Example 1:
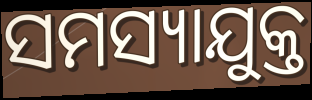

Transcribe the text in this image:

ସମସ୍ୟାଯୁକ୍ତ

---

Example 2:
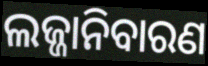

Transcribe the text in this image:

ଲଜ୍ଜାନିବାରଣ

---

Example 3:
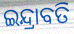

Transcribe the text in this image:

ଇନ୍ଦ୍ରାବତି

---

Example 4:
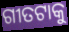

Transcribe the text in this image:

ଗୀତଟାକୁ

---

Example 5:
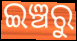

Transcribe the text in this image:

ଇଞ୍ଚରୁ